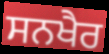
ਸਨਖੈਰ